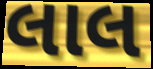
લાલ